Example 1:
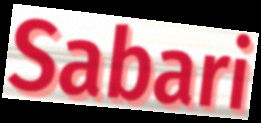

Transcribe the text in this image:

Sabari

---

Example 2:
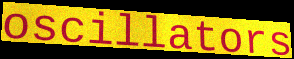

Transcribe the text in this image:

oscillators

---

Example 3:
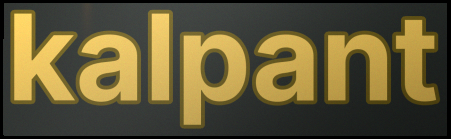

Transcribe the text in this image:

kalpant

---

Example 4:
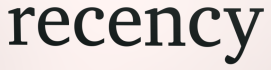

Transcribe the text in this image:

recency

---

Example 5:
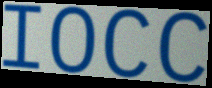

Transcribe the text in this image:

IOCC